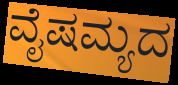
ವೈಷಮ್ಯದ